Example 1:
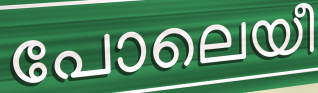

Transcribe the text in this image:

പോലെയീ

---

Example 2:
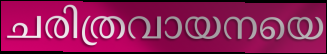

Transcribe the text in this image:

ചരിത്രവായനയെ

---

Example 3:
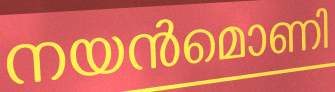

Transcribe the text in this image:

നയൻമൊണി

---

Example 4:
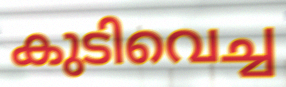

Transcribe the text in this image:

കുടിവെച്ച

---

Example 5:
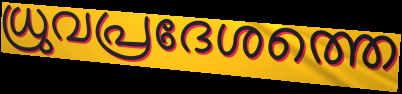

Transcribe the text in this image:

ധ്രുവപ്രദേശത്തെ